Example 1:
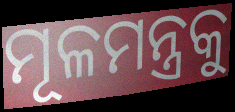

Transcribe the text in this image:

ମୂଳମନ୍ତ୍ରକୁ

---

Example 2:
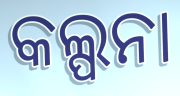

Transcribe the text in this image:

କଲ୍ପନା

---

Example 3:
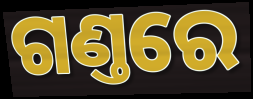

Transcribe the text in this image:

ଗଣ୍ତରେ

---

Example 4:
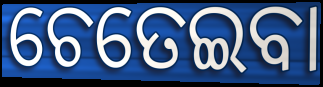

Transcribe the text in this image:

ଚେତେଇବା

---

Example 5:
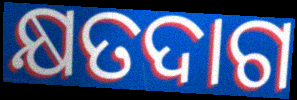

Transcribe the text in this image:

କ୍ଷତଦାଗ